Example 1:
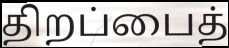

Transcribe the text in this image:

திறப்பைத்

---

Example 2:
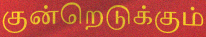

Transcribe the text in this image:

குன்றெடுக்கும்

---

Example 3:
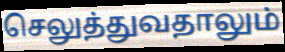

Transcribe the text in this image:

செலுத்துவதாலும்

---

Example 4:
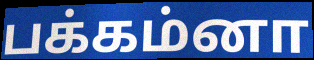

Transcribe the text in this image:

பக்கம்னா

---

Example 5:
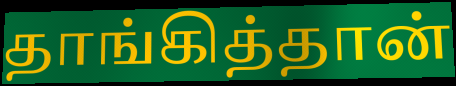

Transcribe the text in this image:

தாங்கித்தான்